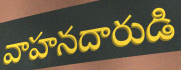
వాహనదారుడి